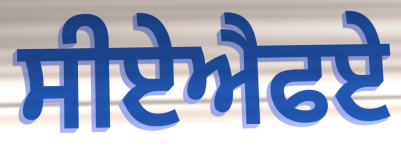
ਸੀਏਐਫਏ